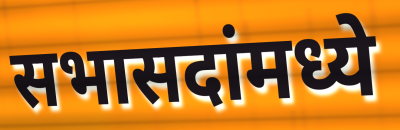
सभासदांमध्ये